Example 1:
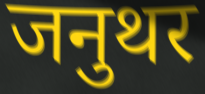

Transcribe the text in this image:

जनुथर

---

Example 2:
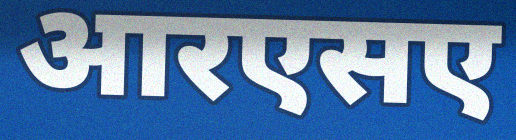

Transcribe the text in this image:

आरएसए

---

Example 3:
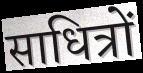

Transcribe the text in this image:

साधित्रों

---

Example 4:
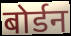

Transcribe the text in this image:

बोर्डन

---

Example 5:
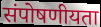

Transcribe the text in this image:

संपोषणीयता